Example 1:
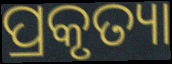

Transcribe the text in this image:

ପ୍ରକୃତ୍ୟା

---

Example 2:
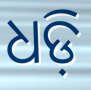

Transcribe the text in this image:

ଧଡ଼ି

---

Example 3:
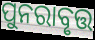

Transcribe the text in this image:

ପୁନରାବୃତ୍ତ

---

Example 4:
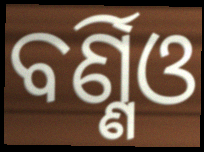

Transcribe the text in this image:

ବର୍ଣ୍ଣିଓ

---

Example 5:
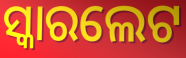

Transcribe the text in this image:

ସ୍କାରଲେଟ